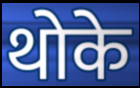
थोके